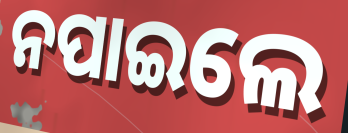
ନପାଇଲେ